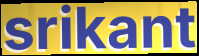
srikant